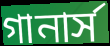
গানার্স